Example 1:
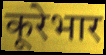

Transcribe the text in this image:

कूरेभार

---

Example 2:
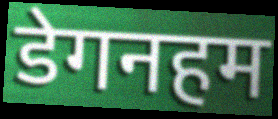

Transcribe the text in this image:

डेगनहम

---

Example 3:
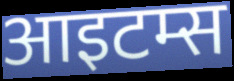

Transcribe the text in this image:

आइटम्‍स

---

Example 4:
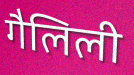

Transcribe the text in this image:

गैलिली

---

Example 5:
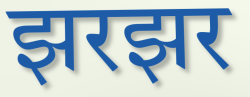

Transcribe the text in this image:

झरझर